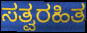
ಸತ್ವರಹಿತ